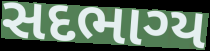
સદભાગ્ય